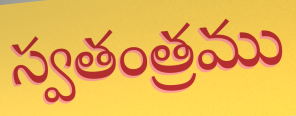
స్వతంత్రము